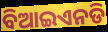
ବିଆଇଏନଡି